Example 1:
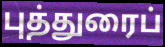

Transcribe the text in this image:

புத்துரைப்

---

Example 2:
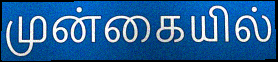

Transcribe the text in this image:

முன்கையில்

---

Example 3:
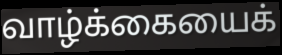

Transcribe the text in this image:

வாழ்க்கையைக்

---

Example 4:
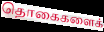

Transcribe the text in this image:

தொகைகளைக்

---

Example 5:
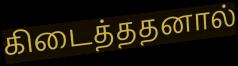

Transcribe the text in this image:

கிடைத்ததனால்